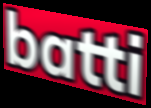
batti